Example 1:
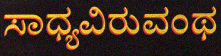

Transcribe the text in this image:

ಸಾಧ್ಯವಿರುವಂಥ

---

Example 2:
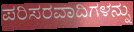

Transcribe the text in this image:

ಪರಿಸರವಾದಿಗಳನ್ನು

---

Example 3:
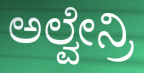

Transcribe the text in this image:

ಅಲ್ವೇನ್ರಿ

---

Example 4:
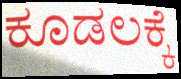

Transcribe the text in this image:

ಕೂಡಲಕ್ಕೆ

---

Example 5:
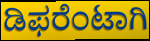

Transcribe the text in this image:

ಡಿಫರೆಂಟಾಗಿ